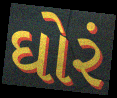
ઘોરં